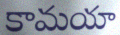
కామయా